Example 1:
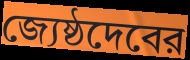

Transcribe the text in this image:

জ্যেষ্ঠদেবের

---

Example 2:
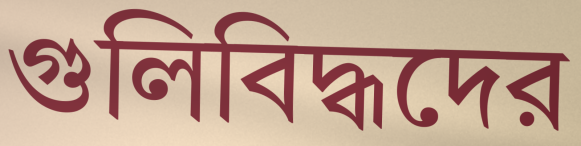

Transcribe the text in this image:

গুলিবিদ্ধদের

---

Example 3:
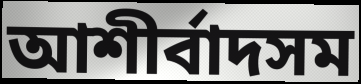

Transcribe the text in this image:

আশীর্বাদসম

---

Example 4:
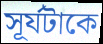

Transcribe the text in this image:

সূর্যটাকে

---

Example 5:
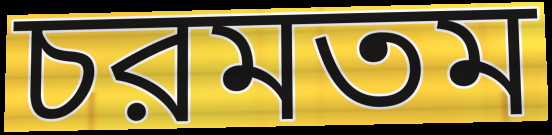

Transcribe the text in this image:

চরমতম